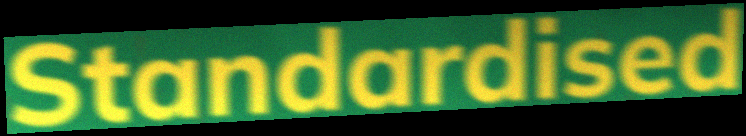
Standardised